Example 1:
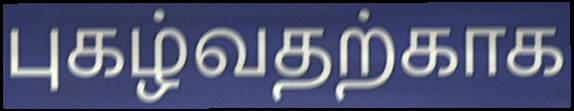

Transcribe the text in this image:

புகழ்வதற்காக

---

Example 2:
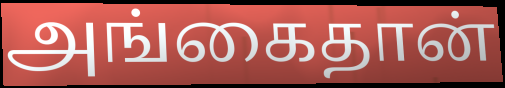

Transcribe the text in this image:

அங்கைதான்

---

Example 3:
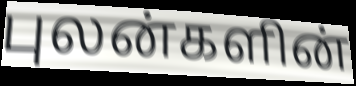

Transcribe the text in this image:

புலன்களின்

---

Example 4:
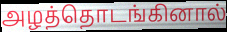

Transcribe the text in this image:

அழத்தொடங்கினால்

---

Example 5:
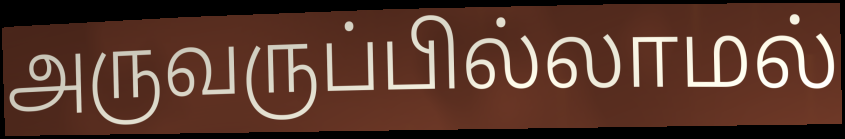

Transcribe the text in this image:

அருவருப்பில்லாமல்